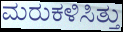
ಮರುಕಳಿಸಿತ್ತು